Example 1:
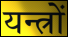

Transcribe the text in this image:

यन्त्रों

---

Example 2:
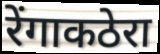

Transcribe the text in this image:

रेंगाकठेरा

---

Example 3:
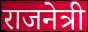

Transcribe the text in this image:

राजनेत्री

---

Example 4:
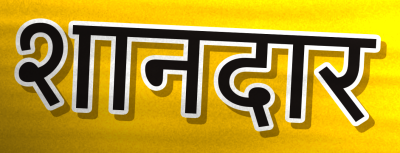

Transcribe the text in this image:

शानदार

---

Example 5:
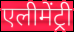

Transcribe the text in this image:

एलीमेंट्री